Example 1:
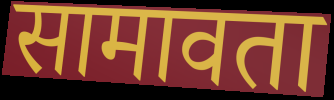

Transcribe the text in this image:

सामावता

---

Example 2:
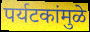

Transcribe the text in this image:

पर्यटकांमुळे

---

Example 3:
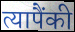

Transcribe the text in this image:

त्यापैंकी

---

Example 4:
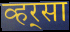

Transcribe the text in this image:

व्हर्सा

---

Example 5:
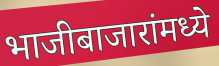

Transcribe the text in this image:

भाजीबाजारांमध्ये